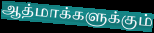
ஆத்மாக்களுக்கும்